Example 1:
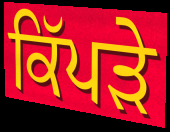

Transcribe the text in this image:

ਕਿੱਪੜੇ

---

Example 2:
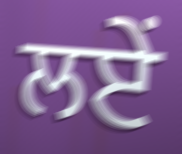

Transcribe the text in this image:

ਲਏਂ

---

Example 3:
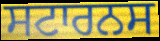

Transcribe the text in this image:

ਸਟਾਰਨਸ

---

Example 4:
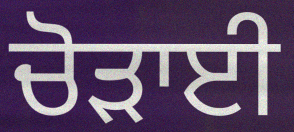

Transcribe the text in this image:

ਚੋੜਾਈ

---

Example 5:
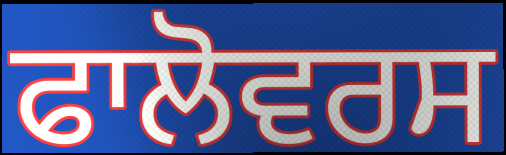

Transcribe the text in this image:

ਫਾਲੋਵਰਸ